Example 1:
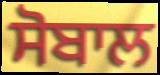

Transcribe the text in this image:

ਸੋਬਾਲ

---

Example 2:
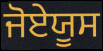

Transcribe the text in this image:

ਜੋਏਯੂਸ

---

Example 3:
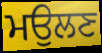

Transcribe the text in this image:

ਮਉਲਣ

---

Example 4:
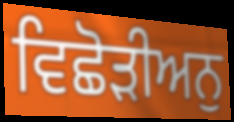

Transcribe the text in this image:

ਵਿਛੋੜੀਅਨੁ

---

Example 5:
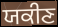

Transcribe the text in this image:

ਯਕੀਣ